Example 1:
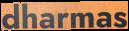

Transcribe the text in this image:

dharmas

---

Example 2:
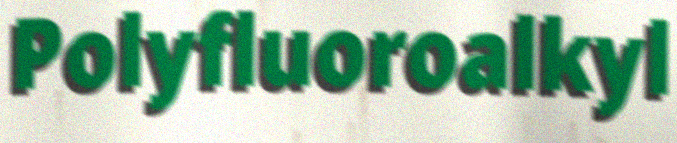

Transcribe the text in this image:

Polyfluoroalkyl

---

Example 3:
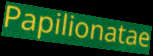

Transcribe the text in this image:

Papilionatae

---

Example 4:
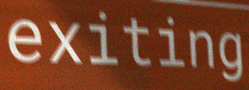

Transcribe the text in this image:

exiting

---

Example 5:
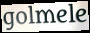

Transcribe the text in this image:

golmele